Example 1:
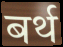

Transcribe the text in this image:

बर्थ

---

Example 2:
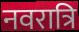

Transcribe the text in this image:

नवरात्रि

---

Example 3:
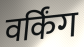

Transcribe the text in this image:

वर्किंग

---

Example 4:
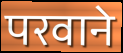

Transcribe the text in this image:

परवाने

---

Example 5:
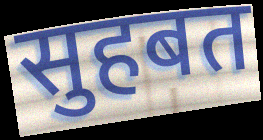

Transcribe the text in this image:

सुहबत